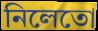
নিলেতো